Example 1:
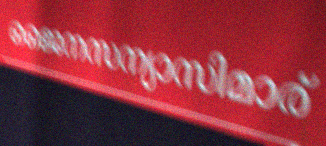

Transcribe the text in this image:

ജൈനസന്യാസിമാര്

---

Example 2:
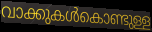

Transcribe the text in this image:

വാക്കുകൾകൊണ്ടുള്ള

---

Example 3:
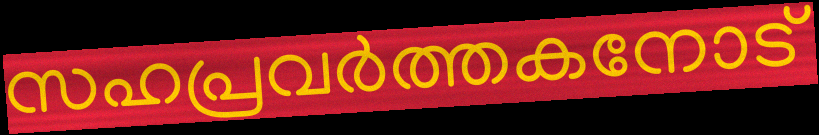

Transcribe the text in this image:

സഹപ്രവർത്തകനോട്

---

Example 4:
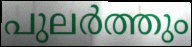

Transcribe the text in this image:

പുലർത്തും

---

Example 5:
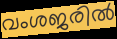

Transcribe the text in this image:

വംശജരിൽ